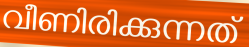
വീണിരിക്കുന്നത്